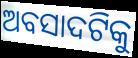
ଅବସାଦଟିକୁ